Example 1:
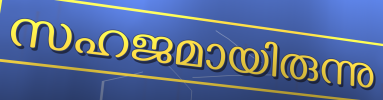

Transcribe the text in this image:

സഹജമായിരുന്നു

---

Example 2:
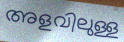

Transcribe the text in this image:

അളവിലുള്ള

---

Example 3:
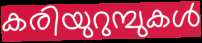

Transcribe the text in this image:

കരിയുറുമ്പുകൾ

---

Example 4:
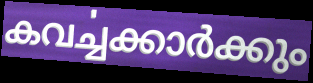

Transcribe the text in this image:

കവൎച്ചക്കാർക്കും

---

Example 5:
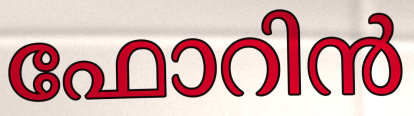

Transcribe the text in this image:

ഫോറിൻ